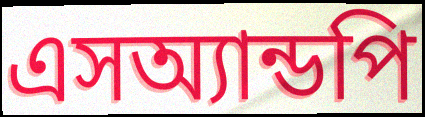
এসঅ্যান্ডপি